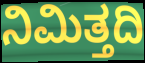
ನಿಮಿತ್ತದಿ